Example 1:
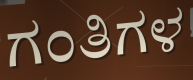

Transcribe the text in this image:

ಗಂತಿಗಳ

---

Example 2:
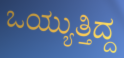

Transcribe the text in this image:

ಒಯ್ಯುತ್ತಿದ್ದ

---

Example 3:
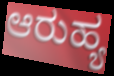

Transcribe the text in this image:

ಆರುಹ್ಯ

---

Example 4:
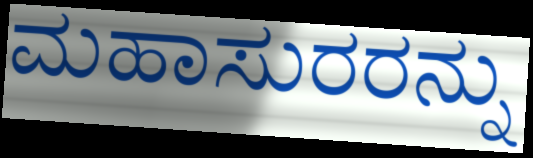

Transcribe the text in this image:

ಮಹಾಸುರರನ್ನು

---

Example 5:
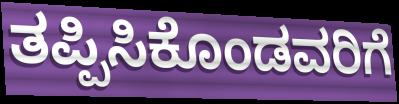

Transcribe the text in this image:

ತಪ್ಪಿಸಿಕೊಂಡವರಿಗೆ